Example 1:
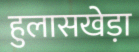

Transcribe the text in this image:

हुलासखेड़ा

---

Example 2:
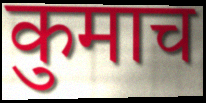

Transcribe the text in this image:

कुमाच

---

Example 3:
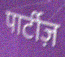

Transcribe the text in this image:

पार्टीज़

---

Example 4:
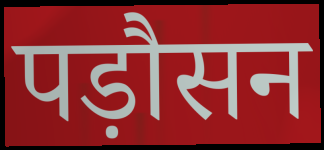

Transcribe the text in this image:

पड़ौसन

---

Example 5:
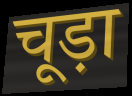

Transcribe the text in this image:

चूड़ा